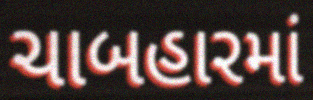
ચાબહારમાં